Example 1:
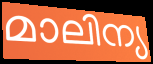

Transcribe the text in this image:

മാലിന്യ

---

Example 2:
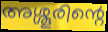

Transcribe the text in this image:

അശ്ശൂരിന്റെ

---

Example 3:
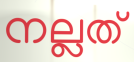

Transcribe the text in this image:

നല്ലത്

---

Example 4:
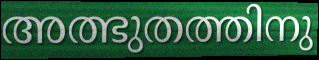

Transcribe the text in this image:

അത്ഭുതത്തിനു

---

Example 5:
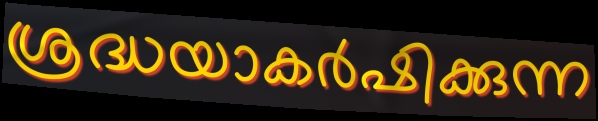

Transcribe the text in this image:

ശ്രദ്ധയാകർഷിക്കുന്ന